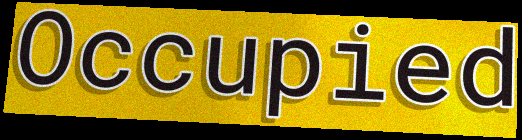
Occupied